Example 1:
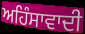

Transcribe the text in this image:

ਅਹਿੰਸਾਵਾਦੀ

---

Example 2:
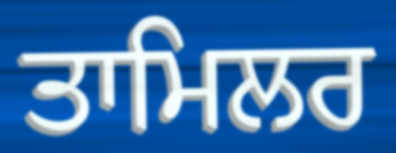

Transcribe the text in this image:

ਤਾਮਿਲਰ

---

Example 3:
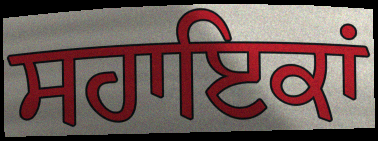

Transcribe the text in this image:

ਸਹਾਇਕਾਂ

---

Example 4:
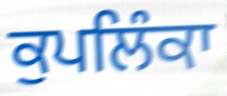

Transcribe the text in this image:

ਕੁਪਲਿੰਕਾ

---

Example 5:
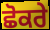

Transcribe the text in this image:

ਛੋਕਰੇ